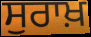
ਸੁਰਾਖ਼